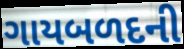
ગાયબળદની